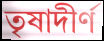
তৃষাদীর্ণ